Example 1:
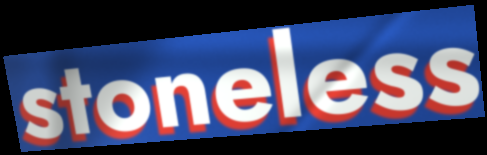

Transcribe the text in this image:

stoneless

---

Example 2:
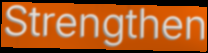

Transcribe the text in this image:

Strengthen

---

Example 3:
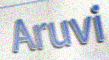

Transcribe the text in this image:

Aruvi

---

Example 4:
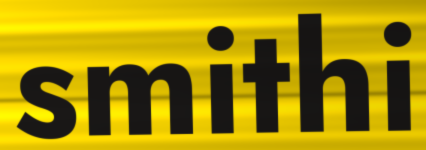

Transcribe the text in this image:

smithi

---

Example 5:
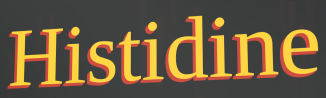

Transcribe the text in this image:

Histidine